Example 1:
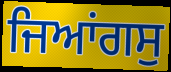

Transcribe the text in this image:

ਜਿਆਂਗਸੁ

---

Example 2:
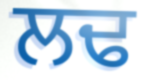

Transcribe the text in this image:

ਲਢ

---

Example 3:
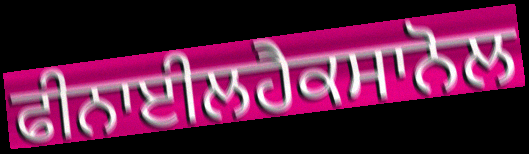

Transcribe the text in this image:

ਫੀਨਾਈਲਹੈਕਸਾਨੋਲ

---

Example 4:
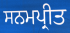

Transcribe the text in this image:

ਸਨਮਪ੍ਰੀਤ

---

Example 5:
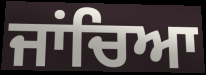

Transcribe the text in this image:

ਜਾਂਚਿਆ